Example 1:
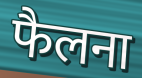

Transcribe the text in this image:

फैलना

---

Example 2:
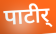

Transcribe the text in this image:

पाटीर्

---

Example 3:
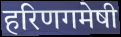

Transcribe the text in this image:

हरिणगमेषी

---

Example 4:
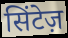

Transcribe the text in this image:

सिंटेज़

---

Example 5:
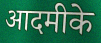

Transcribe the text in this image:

आदमीके